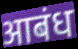
आबंध